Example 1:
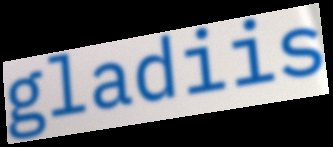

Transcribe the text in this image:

gladiis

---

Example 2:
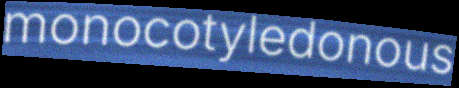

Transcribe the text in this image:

monocotyledonous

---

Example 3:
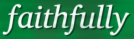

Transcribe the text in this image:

faithfully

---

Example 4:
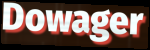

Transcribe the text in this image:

Dowager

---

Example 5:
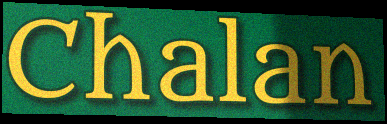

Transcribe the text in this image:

Chalan